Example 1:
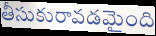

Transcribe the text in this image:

తీసుకురావడమైంది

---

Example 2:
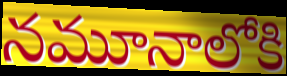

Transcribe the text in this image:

నమూనాలోకి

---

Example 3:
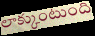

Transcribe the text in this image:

లాక్కుంటుంది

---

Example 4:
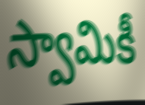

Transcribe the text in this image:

స్వామికీ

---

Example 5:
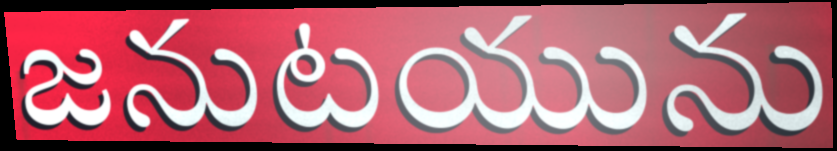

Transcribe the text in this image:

జనుటయును